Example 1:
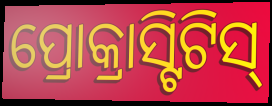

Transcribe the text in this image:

ପ୍ରୋକ୍ରାସ୍ଟିଟିସ୍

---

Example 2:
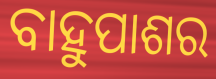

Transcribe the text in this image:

ବାହୁପାଶର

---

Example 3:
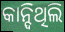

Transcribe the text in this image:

କାନ୍ଦିଥିଲି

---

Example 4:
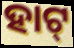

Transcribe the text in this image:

ହାଟ୍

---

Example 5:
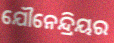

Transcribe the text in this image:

ଯୌନେନ୍ଦ୍ରିୟର